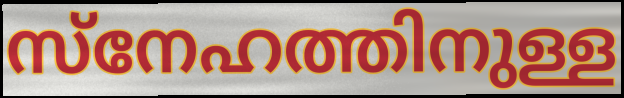
സ്നേഹത്തിനുള്ള